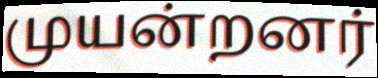
முயன்றனர்